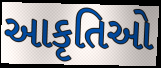
આકૃતિઓ